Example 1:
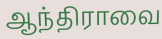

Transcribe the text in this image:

ஆந்திராவை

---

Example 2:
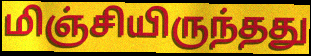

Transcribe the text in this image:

மிஞ்சியிருந்தது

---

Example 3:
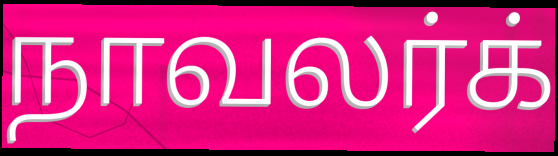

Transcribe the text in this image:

நாவலர்க்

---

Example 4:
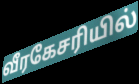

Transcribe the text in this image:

வீரகேசரியில்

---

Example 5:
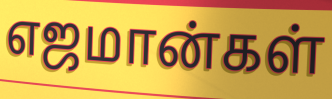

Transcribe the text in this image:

எஜமான்கள்